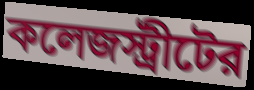
কলেজস্ট্রীটের